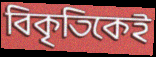
বিকৃতিকেই